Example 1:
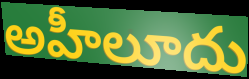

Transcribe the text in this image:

అహీలూదు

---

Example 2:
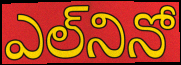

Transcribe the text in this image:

ఎల్‌నినో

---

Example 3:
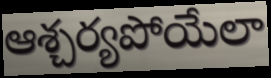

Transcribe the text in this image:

ఆశ్చర్యపోయేలా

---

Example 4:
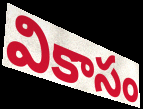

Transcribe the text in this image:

వికాసం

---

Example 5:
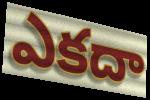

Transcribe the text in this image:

ఎకదా